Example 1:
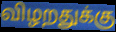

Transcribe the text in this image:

விழறதுக்கு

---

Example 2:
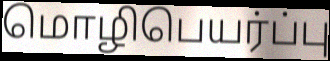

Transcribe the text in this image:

மொழிபெயர்ப்பு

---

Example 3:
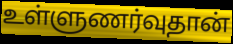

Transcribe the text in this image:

உள்ளுணர்வுதான்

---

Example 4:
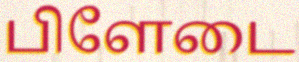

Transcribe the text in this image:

பிளேடை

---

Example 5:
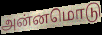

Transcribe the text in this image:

அன்னமொடு